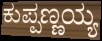
ಕುಪ್ಪಣ್ಣಯ್ಯ